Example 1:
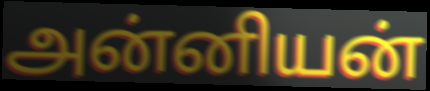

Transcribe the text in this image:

அன்னியன்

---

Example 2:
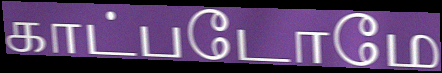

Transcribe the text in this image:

காட்படோமே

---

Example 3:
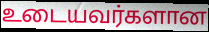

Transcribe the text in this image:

உடையவர்களான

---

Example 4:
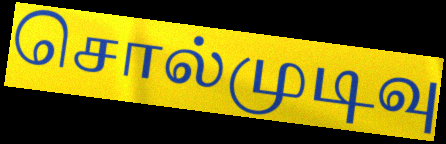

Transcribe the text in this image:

சொல்முடிவு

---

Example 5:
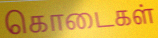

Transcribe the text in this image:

கொடைகள்